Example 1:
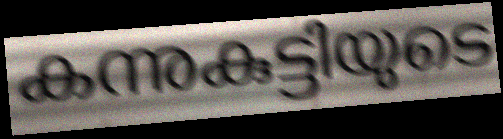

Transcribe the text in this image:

കന്നുകുട്ടിയുടെ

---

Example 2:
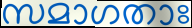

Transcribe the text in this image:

സമാഗതാഃ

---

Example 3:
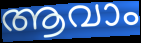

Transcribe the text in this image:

ആവാം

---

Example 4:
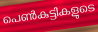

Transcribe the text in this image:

പെൺകുട്ടികളുടെ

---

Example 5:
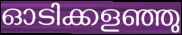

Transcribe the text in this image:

ഓടിക്കളഞ്ഞു